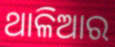
ଥାଳିଆର